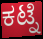
ಕಟ್ನೆ